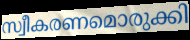
സ്വീകരണമൊരുക്കി